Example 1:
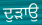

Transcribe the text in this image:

ਦੁੜਾਉ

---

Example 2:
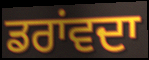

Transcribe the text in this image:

ਡਰਾਂਵਦਾ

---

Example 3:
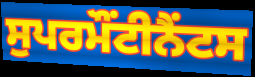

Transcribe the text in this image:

ਸੁਪਰਮੌਂਟੀਨੈਂਟਸ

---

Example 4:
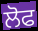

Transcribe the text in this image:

ਲੋਫ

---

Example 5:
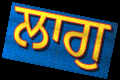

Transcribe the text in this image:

ਲਾਗੁ